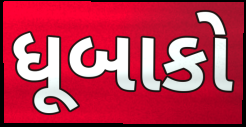
ધૂબાકો